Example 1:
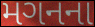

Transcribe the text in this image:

મગનના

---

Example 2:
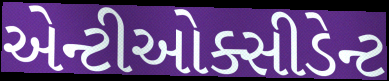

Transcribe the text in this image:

એન્ટીઓક્સીડેન્ટ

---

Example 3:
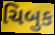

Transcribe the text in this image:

ચિબુક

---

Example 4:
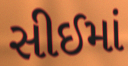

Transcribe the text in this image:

સીઈમાં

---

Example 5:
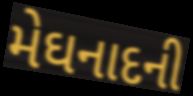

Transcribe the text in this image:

મેઘનાદની